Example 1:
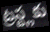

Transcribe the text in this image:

ట్రస్ట్లకు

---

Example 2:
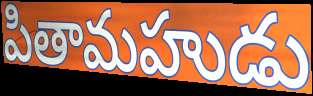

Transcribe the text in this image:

పితామహుడు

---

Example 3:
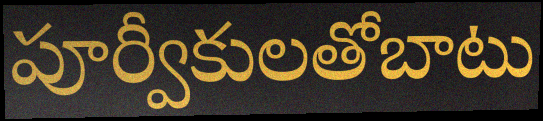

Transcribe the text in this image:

పూర్వీకులతోబాటు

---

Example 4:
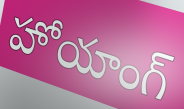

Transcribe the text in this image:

హోయాంగ్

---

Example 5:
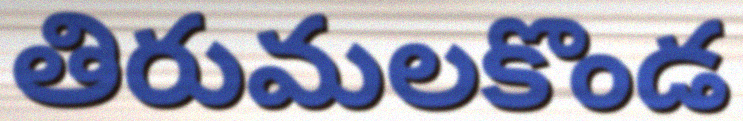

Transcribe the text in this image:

తిరుమలకొండ